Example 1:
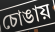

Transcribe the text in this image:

চোঙায়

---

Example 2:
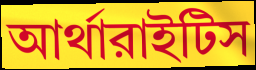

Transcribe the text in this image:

আর্থারাইটিস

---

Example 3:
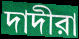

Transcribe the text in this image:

দাদীরা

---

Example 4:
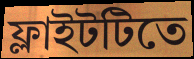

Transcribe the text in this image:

ফ্লাইটটিতে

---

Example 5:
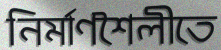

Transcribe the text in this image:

নির্মাণশৈলীতে